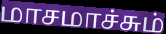
மாசமாச்சும்